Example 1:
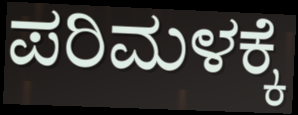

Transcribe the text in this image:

ಪರಿಮಳಕ್ಕೆ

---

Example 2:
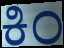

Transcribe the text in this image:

ಕಿಂ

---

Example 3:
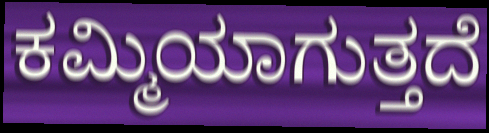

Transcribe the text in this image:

ಕಮ್ಮಿಯಾಗುತ್ತದೆ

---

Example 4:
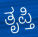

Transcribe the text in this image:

ತೃಪ್ತಿ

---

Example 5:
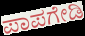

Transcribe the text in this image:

ಪಾಪಗೇಡಿ